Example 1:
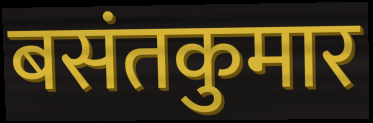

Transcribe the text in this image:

बसंतकुमार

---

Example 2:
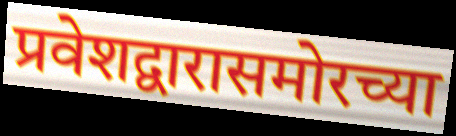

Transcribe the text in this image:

प्रवेशद्वारासमोरच्या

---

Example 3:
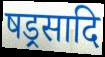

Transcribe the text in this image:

षड्रसादि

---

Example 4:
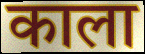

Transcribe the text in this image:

काला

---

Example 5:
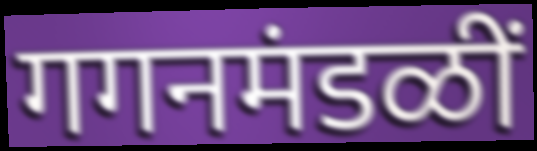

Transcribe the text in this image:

गगनमंडळीं